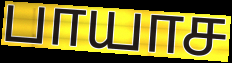
பாயாச